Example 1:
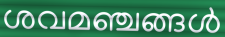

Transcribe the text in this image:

ശവമഞ്ചങ്ങൾ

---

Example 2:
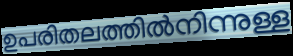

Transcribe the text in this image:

ഉപരിതലത്തിൽനിന്നുള്ള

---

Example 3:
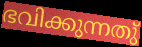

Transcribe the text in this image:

ഭവിക്കുന്നതു്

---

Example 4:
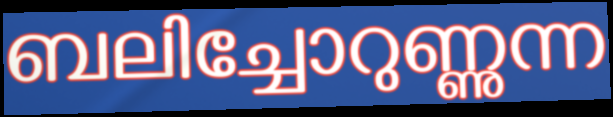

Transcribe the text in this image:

ബലിച്ചോറുണ്ണുന്ന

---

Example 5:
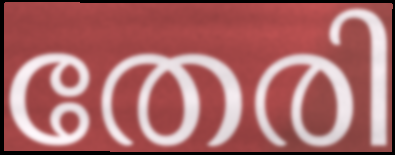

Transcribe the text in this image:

തേരി